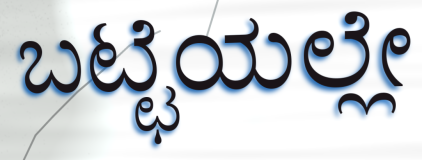
ಬಟ್ಟೆಯಲ್ಲೇ